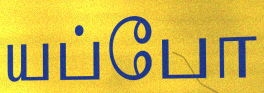
யப்போ